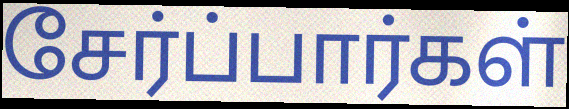
சேர்ப்பார்கள்